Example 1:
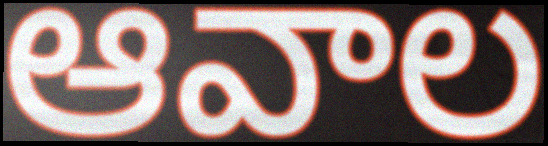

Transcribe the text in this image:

ఆవాల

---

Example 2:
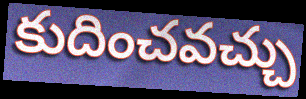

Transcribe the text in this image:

కుదించవచ్చు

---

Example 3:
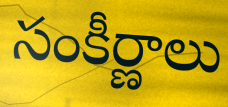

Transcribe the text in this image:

సంకీర్ణాలు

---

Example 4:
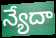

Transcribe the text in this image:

న్యేదా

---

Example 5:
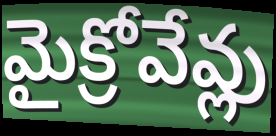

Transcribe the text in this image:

మైక్రోవేవ్లు